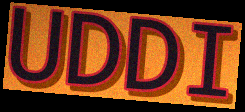
UDDI